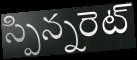
స్పిన్నరెట్